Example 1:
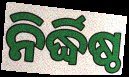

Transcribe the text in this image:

ନିର୍ଦ୍ଧିଷ୍ଠ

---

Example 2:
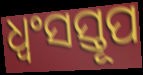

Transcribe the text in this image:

ଧ୍ୱଂସସ୍ତୂପ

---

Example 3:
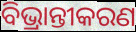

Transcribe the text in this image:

ବିଭ୍ରାନ୍ତୀକରଣ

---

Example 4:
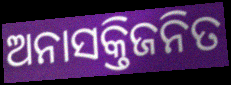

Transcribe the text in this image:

ଅନାସକ୍ତିଜନିତ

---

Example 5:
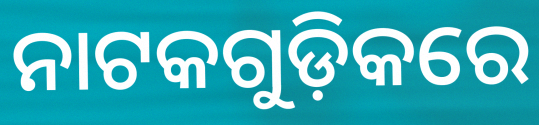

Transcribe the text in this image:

ନାଟକଗୁଡ଼ିକରେ